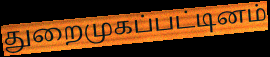
துறைமுகப்பட்டினம்